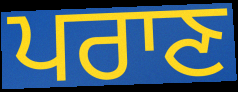
ਪਰਾਣ